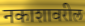
नकाशावरील